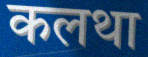
कलथा